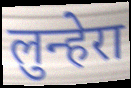
लुन्हेरा